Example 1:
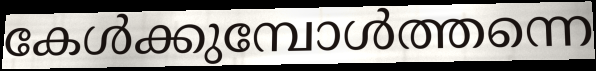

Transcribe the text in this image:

കേൾക്കുമ്പോൾത്തന്നെ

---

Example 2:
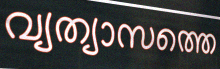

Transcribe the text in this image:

വ്യത്യാസത്തെ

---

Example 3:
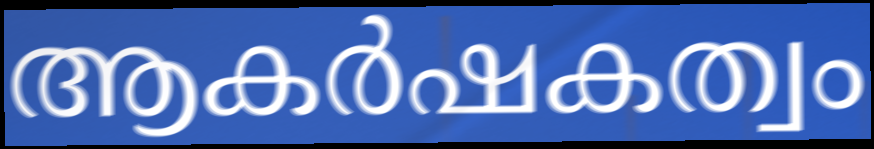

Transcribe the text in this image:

ആകർഷകത്വം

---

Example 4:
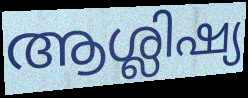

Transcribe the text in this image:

ആശ്ലിഷ്യ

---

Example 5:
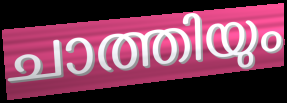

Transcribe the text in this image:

ചാത്തിയും